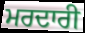
ਮਰਦਾਰੀ